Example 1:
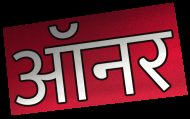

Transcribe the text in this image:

ऑनर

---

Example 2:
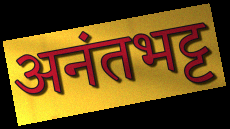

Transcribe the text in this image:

अनंतभट्ट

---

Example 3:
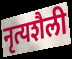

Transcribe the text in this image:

नृत्यशैली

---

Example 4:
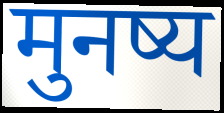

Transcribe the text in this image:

मुनष्य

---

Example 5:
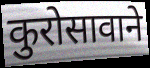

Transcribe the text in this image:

कुरोसावाने